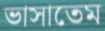
ভাসাতেম